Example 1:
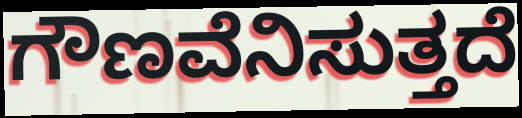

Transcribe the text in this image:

ಗೌಣವೆನಿಸುತ್ತದೆ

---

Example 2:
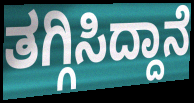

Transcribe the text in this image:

ತಗ್ಗಿಸಿದ್ದಾನೆ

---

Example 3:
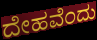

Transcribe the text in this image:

ದೇಹವೆಂದು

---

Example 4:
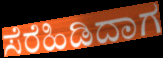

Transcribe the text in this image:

ಸೆರೆಹಿಡಿದಾಗ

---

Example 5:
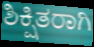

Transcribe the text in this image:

ಶಿಕ್ಷಿತರಾಗಿ